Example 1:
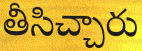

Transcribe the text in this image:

తీసిచ్చారు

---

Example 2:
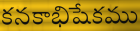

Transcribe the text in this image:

కనకాభిషేకము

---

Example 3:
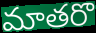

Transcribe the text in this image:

మాతరొ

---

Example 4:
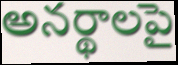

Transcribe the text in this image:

అనర్థాలపై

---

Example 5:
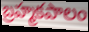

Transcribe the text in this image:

బ్రహ్మకపాలం